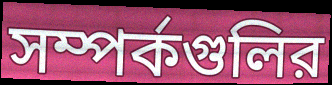
সম্পর্কগুলির